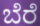
ಬೆರೆ